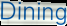
Dining